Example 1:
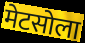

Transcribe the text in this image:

मेटसोला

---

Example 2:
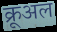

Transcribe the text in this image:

क्रूअल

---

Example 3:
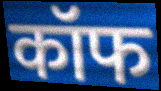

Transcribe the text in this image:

कॉफ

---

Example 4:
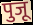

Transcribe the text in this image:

पुजू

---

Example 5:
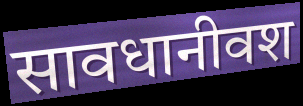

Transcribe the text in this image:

सावधानीवश